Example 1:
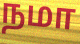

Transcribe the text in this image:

நமா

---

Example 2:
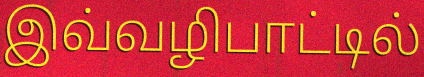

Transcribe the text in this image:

இவ்வழிபாட்டில்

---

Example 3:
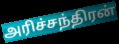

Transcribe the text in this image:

அரிச்சந்திரன்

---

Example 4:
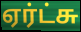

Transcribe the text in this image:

ஏர்ட்சு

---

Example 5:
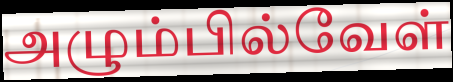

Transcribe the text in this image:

அழும்பில்வேள்